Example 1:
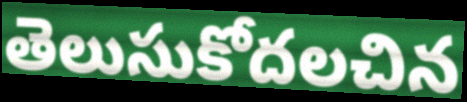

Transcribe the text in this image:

తెలుసుకోదలచిన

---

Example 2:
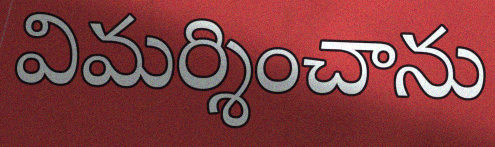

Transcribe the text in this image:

విమర్శించాను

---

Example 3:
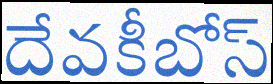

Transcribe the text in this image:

దేవకీబోస్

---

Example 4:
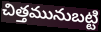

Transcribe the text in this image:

చిత్తమునుబట్టి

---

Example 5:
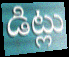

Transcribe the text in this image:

డిట్లు